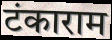
टंकाराम